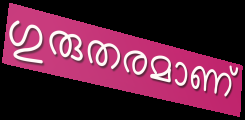
ഗുരുതരമാണ്